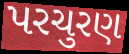
પરચુરણ